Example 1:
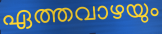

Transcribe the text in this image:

ഏത്തവാഴയും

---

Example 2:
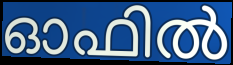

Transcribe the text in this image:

ഓഫിൽ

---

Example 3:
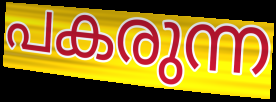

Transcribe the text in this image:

പകരുന്ന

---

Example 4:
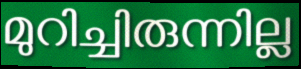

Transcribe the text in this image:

മുറിച്ചിരുന്നില്ല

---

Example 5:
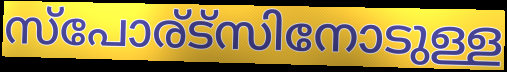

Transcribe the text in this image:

സ്പോര്ട്സിനോടുള്ള